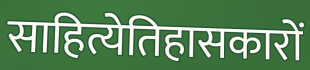
साहित्येतिहासकारों